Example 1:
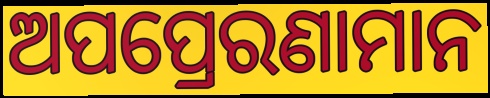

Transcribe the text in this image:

ଅପପ୍ରେରଣାମାନ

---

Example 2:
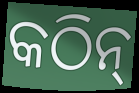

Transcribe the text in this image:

କଠିନ୍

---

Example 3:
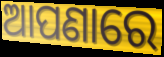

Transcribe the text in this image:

ଆପଣାରେ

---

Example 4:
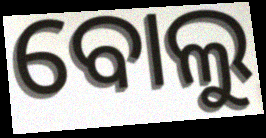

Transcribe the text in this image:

ବୋଲୁ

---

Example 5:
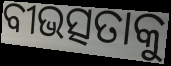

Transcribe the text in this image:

ବୀଭତ୍ସତାକୁ